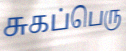
சுகப்பெரு